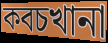
কবচখানা